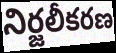
నిర్జలీకరణ